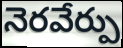
నెరవేర్పు